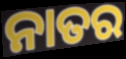
ନାତର